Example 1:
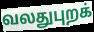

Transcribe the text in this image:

வலதுபுறக்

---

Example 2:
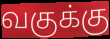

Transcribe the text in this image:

வகுக்கு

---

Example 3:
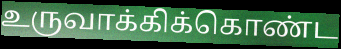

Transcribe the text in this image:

உருவாக்கிக்கொண்ட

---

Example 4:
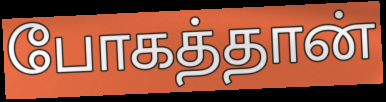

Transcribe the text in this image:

போகத்தான்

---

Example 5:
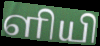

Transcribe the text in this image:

ளியி